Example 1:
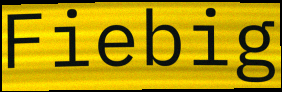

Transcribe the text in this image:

Fiebig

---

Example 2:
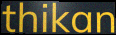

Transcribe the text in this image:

thikan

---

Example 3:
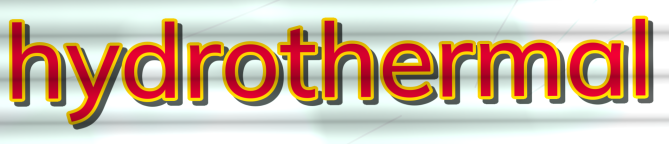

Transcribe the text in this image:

hydrothermal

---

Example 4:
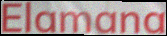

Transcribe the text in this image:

Elamana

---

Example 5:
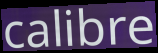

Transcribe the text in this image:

calibre